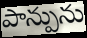
పాన్పును